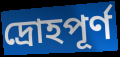
দ্রোহপূর্ণ